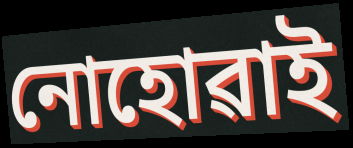
নোহোৱাই